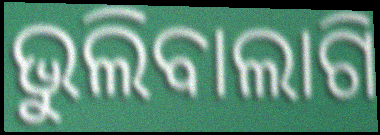
ଭୁଲିବାଲାଗି